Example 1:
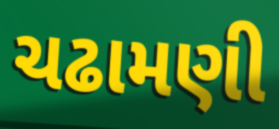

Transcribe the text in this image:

ચઢામણી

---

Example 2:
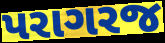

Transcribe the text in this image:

પરાગરજ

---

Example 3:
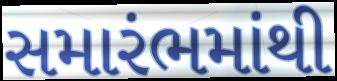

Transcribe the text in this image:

સમારંભમાંથી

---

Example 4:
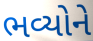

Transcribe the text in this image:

ભવ્યોને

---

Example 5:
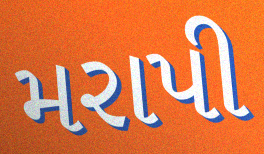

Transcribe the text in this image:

મરાપી